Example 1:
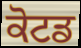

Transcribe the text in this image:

ਕੋਟਡ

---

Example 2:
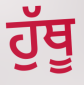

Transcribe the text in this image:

ਹੁੱਥੂ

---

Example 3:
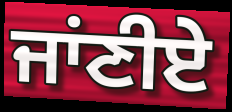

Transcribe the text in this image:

ਜਾਂਣੀਏ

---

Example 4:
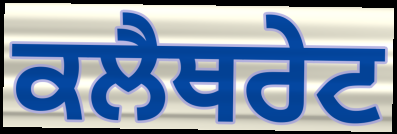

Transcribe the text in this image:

ਕਲੈਥਰੇਟ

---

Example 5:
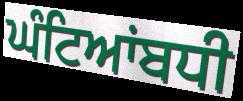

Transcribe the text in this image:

ਘੰਟਿਆਂਬਧੀ